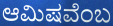
ಆಮಿಷವೆಂಬ